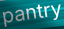
pantry